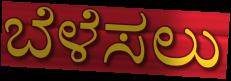
ಬೆಳೆಸಲು